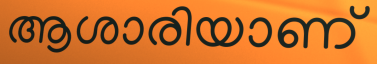
ആശാരിയാണ്